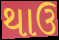
થાઉ